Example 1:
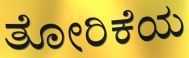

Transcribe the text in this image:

ತೋರಿಕೆಯ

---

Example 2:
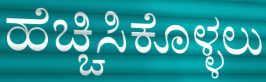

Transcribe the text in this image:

ಹೆಚ್ಚಿಸಿಕೊಳ್ಳಲು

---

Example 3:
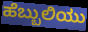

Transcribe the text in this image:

ಹೆಬ್ಬುಲಿಯು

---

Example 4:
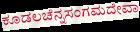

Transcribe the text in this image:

ಕೂಡಲಚೆನ್ನಸಂಗಮದೇವಾ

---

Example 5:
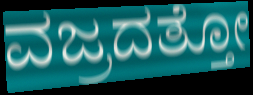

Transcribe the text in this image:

ವಜ್ರದತ್ತೋ